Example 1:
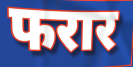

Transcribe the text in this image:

फरार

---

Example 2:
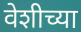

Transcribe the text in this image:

वेशीच्या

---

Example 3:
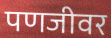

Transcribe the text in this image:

पणजीवर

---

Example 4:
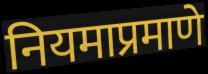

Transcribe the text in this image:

नियमाप्रमाणे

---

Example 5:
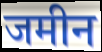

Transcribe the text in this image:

जमीन